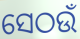
ସେଠଉଁ